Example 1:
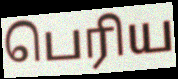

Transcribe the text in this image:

பெரிய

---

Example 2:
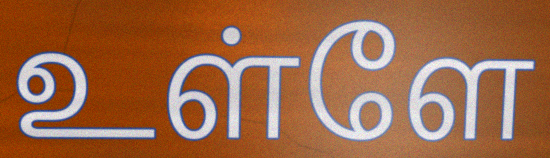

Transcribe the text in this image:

உள்ளே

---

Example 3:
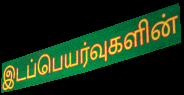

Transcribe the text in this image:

இடப்பெயர்வுகளின்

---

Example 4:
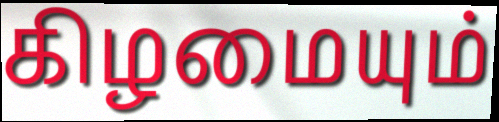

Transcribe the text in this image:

கிழமையும்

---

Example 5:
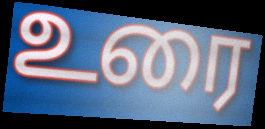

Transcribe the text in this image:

உரை